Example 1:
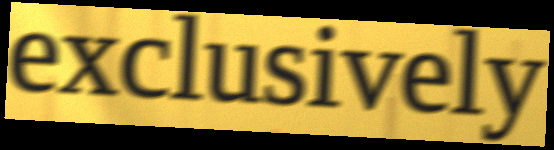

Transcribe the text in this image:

exclusively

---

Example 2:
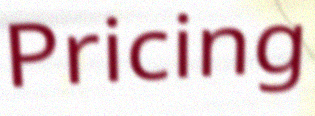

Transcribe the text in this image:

Pricing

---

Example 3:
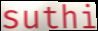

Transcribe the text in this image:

suthi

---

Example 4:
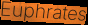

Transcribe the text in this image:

Euphrates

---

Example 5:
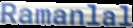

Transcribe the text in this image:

Ramanlal